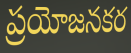
ప్రయోజనకర